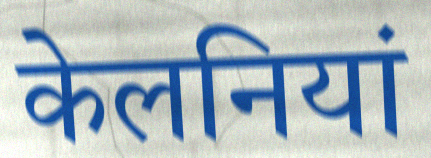
केलनियां